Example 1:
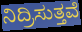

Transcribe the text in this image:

ನಿದ್ರಿಸುತ್ತವೆ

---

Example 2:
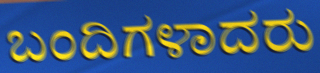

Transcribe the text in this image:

ಬಂದಿಗಳಾದರು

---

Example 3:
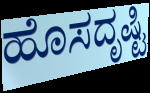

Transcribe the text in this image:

ಹೊಸದೃಷ್ಟಿ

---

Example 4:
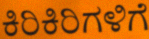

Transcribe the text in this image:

ಕಿರಿಕಿರಿಗಳಿಗೆ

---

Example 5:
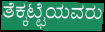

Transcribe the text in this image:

ತೆಕ್ಕಟ್ಟೆಯವರು